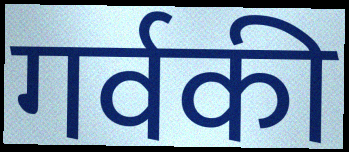
गर्वकी